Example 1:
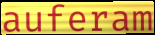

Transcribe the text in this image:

auferam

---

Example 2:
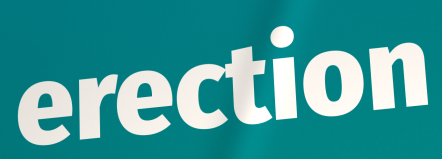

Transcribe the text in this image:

erection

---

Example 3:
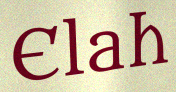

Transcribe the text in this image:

Elah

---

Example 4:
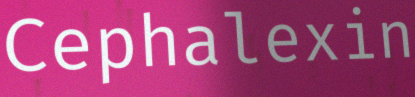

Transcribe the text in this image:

Cephalexin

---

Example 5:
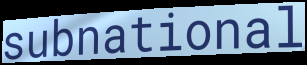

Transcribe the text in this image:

subnational